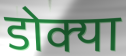
डोक्या